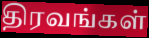
திரவங்கள்